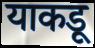
याकडू